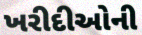
ખરીદીઓની